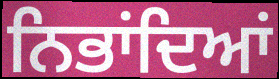
ਨਿਭਾਂਦਿਆਂ